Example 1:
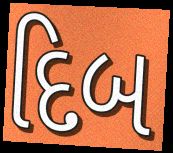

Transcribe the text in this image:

દિબ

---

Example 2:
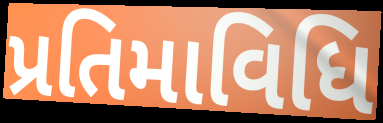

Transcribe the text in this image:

પ્રતિમાવિધિ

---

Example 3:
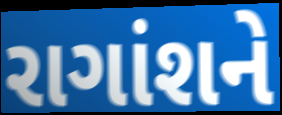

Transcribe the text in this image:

રાગાંશને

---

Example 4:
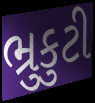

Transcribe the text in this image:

ભ્રુકુટી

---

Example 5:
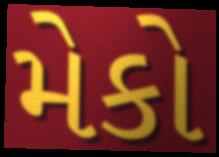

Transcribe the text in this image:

મેકો